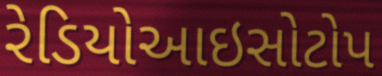
રેડિયોઆઇસોટોપ